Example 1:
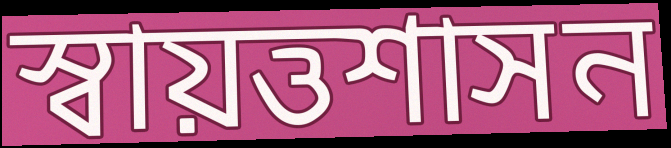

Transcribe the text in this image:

স্বায়ত্তশাসন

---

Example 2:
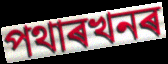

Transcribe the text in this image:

পথাৰখনৰ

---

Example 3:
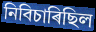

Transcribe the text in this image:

নিবিচাৰিছিল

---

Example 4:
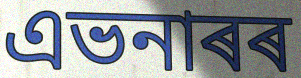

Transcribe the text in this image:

এভনাৰৰ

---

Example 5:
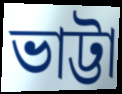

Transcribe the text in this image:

ভাট্টা